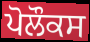
ਪੋਲੌਕਸ